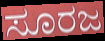
ಸೂರಜ